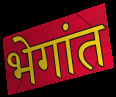
भेगांत